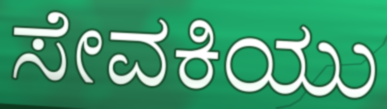
ಸೇವಕಿಯು